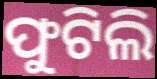
ଫୁଟିଲି